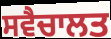
ਸਵੈਚਾਲਤ